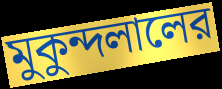
মুকুন্দলালের